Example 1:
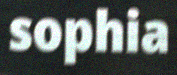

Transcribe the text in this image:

sophia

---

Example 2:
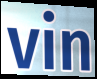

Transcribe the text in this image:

vin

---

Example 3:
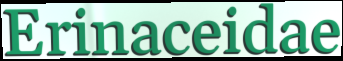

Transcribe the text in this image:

Erinaceidae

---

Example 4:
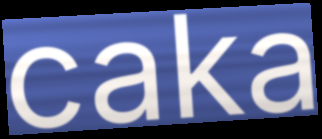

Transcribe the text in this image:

caka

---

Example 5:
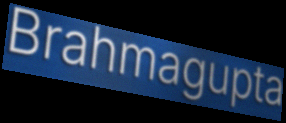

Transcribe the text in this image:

Brahmagupta